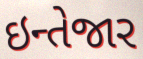
ઇન્તેજાર